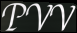
PVV